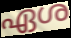
ഏശ